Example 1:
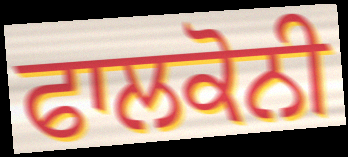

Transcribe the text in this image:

ਫਾਲਕੋਨੀ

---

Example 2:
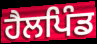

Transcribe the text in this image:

ਹੈਲਪਿੰਡ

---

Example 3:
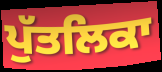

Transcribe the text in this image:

ਪੁੱਤਲਿਕਾ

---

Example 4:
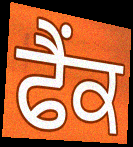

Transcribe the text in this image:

ਫੈਂਕ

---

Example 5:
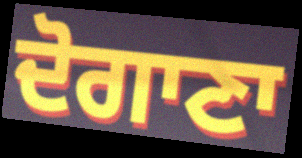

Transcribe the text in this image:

ਦੋਗਾਣਾ